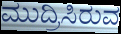
ಮುದ್ರಿಸಿರುವ